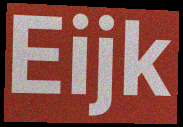
Eijk